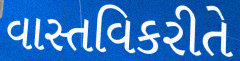
વાસ્તવિકરીતે